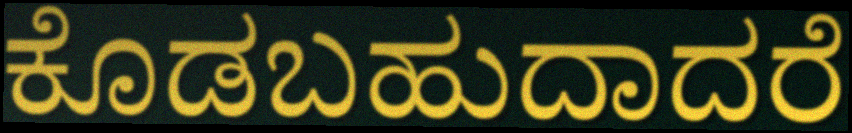
ಕೊಡಬಹುದಾದರೆ